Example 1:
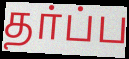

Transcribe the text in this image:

தர்ப்ப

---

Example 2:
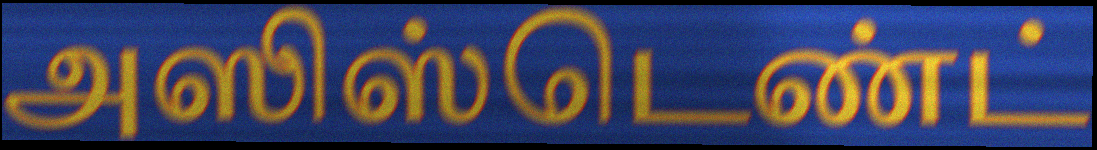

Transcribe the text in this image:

அஸிஸ்டெண்ட்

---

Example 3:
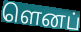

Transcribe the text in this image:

ளெனப்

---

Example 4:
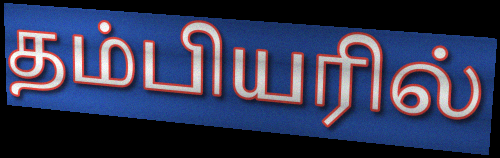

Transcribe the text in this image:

தம்பியரில்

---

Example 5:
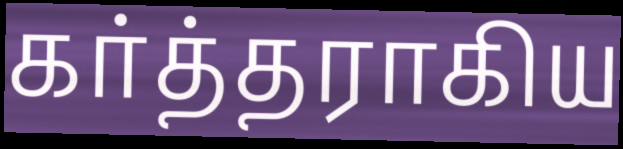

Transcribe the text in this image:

கர்த்தராகிய